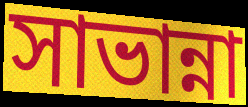
সাভান্না